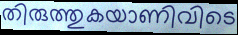
തിരുത്തുകയാണിവിടെ